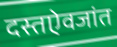
दस्तऐवजांत